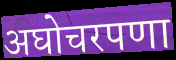
अघोचरपणा